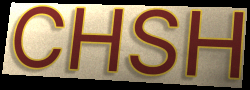
CHSH